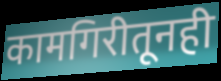
कामगिरीतूनही